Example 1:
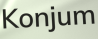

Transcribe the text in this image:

Konjum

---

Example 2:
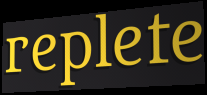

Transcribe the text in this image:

replete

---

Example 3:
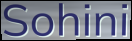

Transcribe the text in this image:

Sohini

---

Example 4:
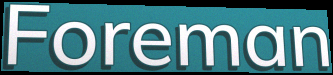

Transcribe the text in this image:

Foreman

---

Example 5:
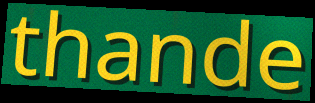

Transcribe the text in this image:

thande